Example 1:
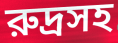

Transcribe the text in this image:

রুদ্রসহ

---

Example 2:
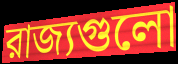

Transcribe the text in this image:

রাজ্যগুলো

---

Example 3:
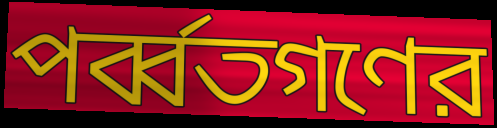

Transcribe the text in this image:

পর্ব্বতগণের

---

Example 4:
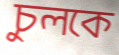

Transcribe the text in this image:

চুলকে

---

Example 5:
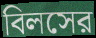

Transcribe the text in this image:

বিলসের